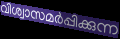
വിശ്വാസമർപ്പിക്കുന്ന